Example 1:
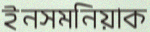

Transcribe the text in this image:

ইনসমনিয়াক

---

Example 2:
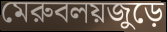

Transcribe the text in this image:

মেরুবলয়জুড়ে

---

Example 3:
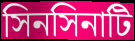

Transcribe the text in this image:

সিনসিনাটি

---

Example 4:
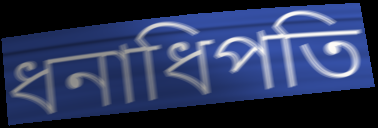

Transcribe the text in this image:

ধনাধিপতি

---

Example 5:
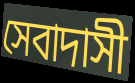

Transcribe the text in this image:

সেবাদাসী